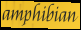
amphibian